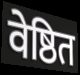
वेष्ठित